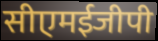
सीएमईजीपी